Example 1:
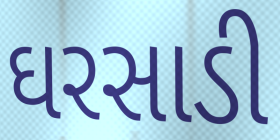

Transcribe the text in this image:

ઘરસાડી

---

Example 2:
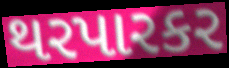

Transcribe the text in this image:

થરપારકર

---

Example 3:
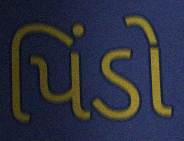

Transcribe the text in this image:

પિંડો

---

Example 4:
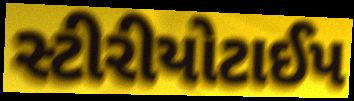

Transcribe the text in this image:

સ્ટીરીયોટાઈપ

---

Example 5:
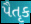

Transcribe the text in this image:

પૈતૃક